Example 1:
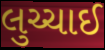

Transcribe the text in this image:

લુચ્ચાઈ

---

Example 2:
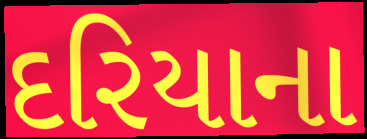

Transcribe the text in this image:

દરિયાના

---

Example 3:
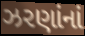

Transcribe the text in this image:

ઝરણાંનાં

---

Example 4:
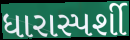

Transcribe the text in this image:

ધારાસ્પર્શી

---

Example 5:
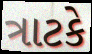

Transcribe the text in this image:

ત્રાટકે